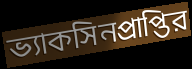
ভ্যাকসিনপ্রাপ্তির